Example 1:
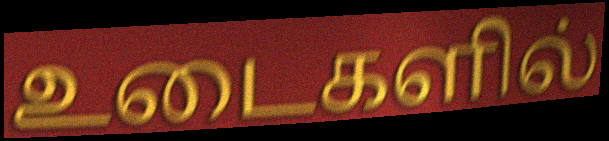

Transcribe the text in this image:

உடைகளில்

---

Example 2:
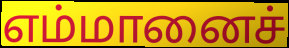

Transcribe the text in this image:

எம்மானைச்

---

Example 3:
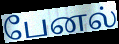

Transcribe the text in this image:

பேனல்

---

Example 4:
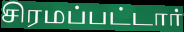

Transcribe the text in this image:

சிரமப்பட்டார்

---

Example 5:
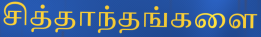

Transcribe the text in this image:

சித்தாந்தங்களை